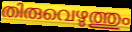
തിരുവെഴുത്തും